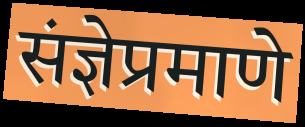
संज्ञेप्रमाणे